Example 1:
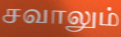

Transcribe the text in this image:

சவாலும்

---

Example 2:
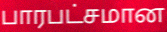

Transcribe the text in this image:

பாரபட்சமான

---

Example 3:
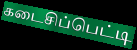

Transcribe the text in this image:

கடைசிப்பெட்டி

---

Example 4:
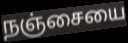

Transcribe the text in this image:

நஞ்சையை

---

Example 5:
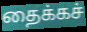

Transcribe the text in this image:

தைக்கச்